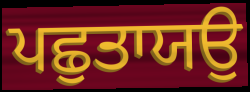
ਪਛੁਤਾਯਉ